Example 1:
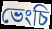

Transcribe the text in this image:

ভেংচি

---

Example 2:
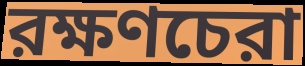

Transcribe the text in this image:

রক্ষণচেরা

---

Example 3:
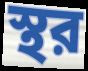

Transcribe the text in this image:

স্থর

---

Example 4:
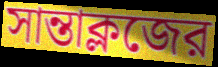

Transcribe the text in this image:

সান্তাক্লজের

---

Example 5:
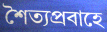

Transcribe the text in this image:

শৈত্যপ্রবাহে